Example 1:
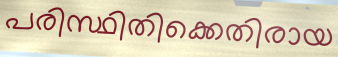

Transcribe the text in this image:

പരിസ്ഥിതിക്കെതിരായ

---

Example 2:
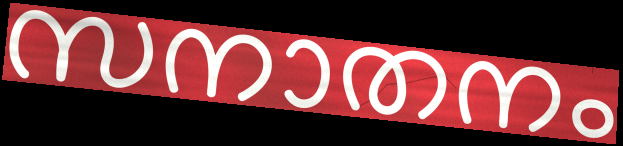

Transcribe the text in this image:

സനാതനം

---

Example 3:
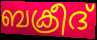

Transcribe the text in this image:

ബക്രീദ്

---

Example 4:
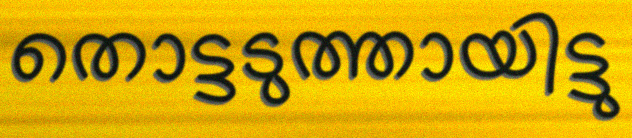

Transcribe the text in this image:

തൊട്ടടുത്തായിട്ടു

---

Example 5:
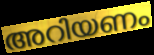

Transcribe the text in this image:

അറിയണം